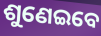
ଶୁଣେଇବେ